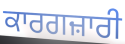
ਕਾਰਗਜ਼ਾਰੀ